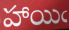
హాయిఁ